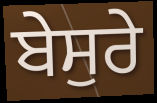
ਬੇਸੁਰੇ